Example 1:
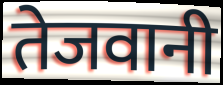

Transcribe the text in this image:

तेजवानी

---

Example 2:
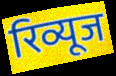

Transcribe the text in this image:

रिव्यूज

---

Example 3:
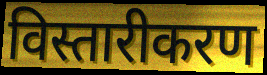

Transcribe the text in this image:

विस्तारीकरण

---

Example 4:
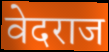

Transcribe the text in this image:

वेदराज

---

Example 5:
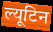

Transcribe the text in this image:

ल्यूटिन